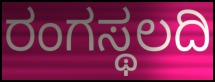
ರಂಗಸ್ಥಲದಿ